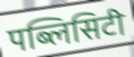
पब्लिसिटी